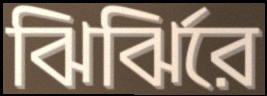
ঝির্ঝিরে